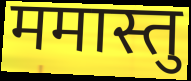
ममास्तु